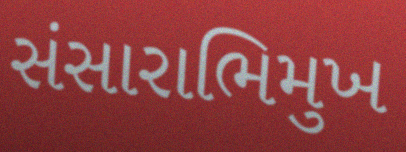
સંસારાભિમુખ